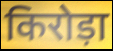
किरोड़ा